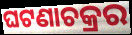
ଘଟଣାଚକ୍ରର